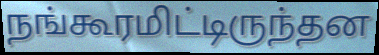
நங்கூரமிட்டிருந்தன